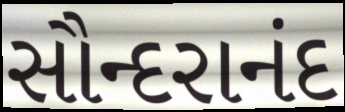
સૌન્દરાનંદ